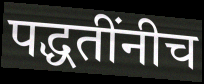
पद्धतींनीच